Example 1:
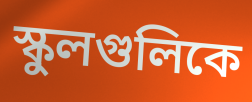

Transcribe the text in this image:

স্কুলগুলিকে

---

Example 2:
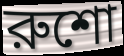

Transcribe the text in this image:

রুশো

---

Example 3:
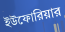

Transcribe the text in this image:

ইউফোরিয়ার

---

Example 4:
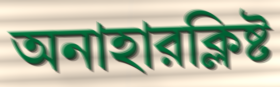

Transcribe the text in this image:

অনাহারক্লিষ্ট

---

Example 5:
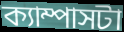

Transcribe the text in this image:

ক্যাম্পাসটা